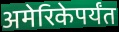
अमेरिकेपर्यंत